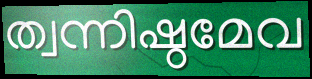
ത്വന്നിഷ്ഠമേവ